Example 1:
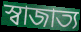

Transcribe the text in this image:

স্বাজাত্য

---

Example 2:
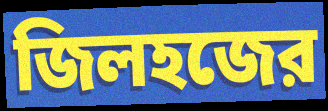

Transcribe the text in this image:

জিলহজের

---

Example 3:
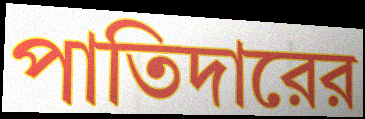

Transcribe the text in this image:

পাতিদারের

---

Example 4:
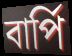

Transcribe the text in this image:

বার্পি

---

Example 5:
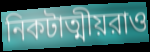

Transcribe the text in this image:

নিকটাত্মীয়রাও